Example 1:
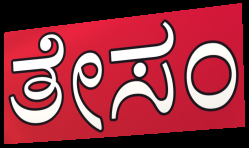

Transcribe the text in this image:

ತೇಸಂ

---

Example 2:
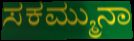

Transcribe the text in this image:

ಸಕಮ್ಮುನಾ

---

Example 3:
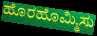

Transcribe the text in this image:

ಹೊರಹೊಮ್ಮಿಸು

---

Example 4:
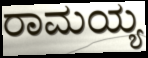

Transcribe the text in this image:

ರಾಮಯ್ಯ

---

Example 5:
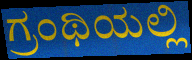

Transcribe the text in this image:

ಗ್ರಂಥಿಯಲ್ಲಿ